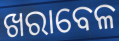
ଖରାବେଳ